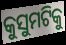
କୁସୁମଟିକୁ